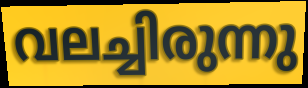
വലച്ചിരുന്നു